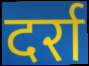
दर्रा